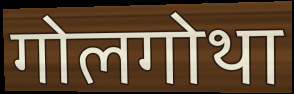
गोलगोथा